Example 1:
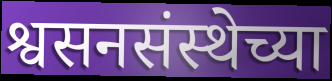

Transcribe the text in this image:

श्वसनसंस्थेच्या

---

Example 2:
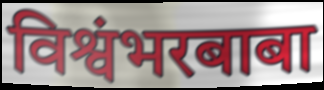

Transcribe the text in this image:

विश्वंभरबाबा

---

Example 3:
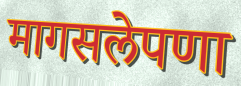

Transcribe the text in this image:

मागसलेपणा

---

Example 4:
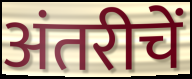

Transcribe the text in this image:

अंतरीचें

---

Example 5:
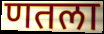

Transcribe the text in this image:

णतला